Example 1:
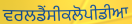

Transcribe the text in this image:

ਵਰਲਡੈਂਸੀਕਲੋਪੀਡੀਆ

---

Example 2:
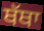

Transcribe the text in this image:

ਥੱਥਾ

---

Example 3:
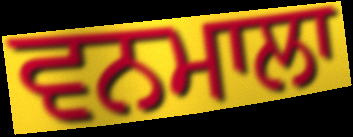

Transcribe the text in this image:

ਵਨਮਾਲਾ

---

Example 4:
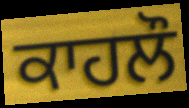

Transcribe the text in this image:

ਕਾਹਲੌ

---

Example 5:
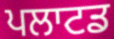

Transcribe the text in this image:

ਪਲਾਟਡ